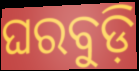
ଘରବୁଡ଼ି